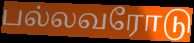
பல்லவரோடு